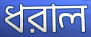
ধরাল